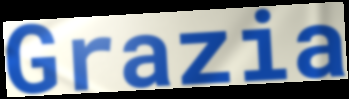
Grazia